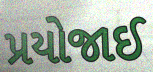
પ્રયોજાઈ